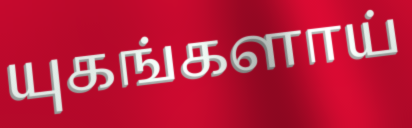
யுகங்களாய்